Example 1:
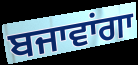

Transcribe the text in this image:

ਬਜਾਵਾਂਗਾ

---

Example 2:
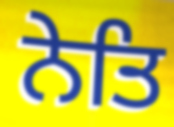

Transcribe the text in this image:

ਨੇਤਿ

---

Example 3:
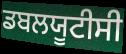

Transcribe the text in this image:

ਡਬਲਯੂਟੀਸੀ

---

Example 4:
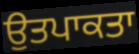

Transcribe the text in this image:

ਉਤਪਾਕਤਾ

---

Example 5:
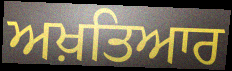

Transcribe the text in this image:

ਅਖ਼ਤਿਆਰ